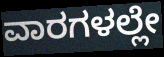
ವಾರಗಳಲ್ಲೇ